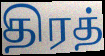
திரத்